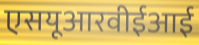
एसयूआरवीईआई